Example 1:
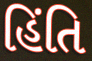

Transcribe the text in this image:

હિંતિ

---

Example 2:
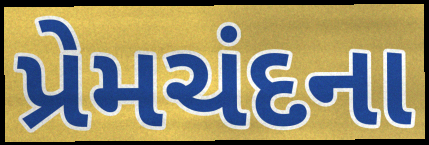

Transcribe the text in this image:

પ્રેમચંદના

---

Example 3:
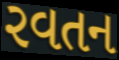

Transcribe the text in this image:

રવતન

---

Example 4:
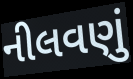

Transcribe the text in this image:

નીલવણું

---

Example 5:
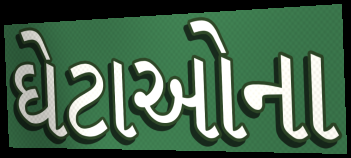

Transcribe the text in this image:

ઘેટાઓના